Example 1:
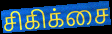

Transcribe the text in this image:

சிகிக்சை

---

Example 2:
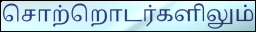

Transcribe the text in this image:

சொற்றொடர்களிலும்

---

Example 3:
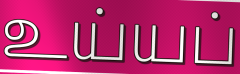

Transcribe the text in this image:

உய்யப்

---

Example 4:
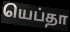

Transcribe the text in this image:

யெப்தா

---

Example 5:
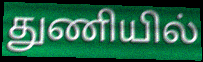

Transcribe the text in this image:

துணியில்